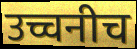
उच्चनीच